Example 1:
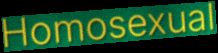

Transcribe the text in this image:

Homosexual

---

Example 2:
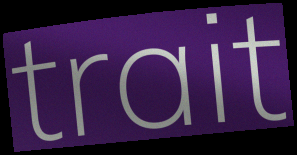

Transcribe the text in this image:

trait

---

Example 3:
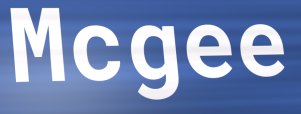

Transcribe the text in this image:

Mcgee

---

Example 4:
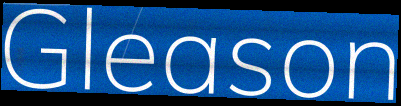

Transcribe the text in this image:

Gleason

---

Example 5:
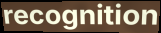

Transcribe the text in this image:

recognition